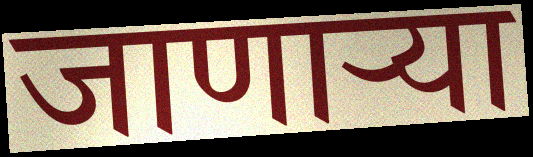
जाणार्‍या